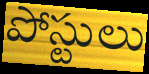
పోస్టులు